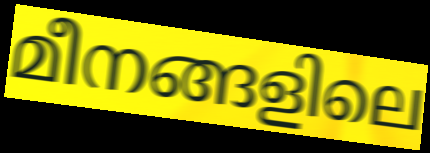
മീനങ്ങളിലെ